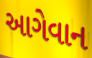
આગેવાન